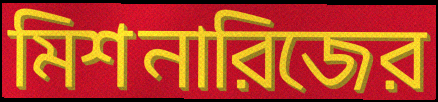
মিশনারিজের